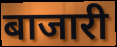
बाजारी